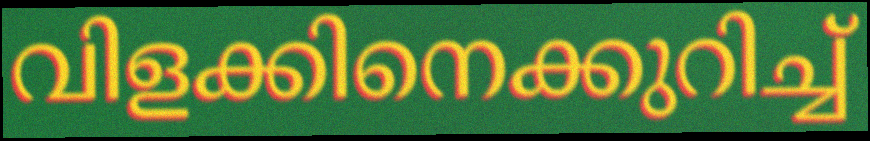
വിളക്കിനെക്കുറിച്ച്